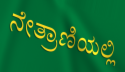
ನೇತ್ರಾಣಿಯಲ್ಲಿ